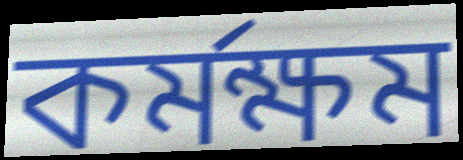
কৰ্মক্ষম